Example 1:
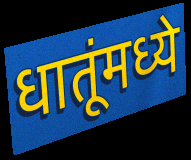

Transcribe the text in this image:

धातूंमध्ये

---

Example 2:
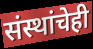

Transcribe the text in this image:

संस्थांचेही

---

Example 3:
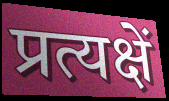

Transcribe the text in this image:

प्रत्यक्षें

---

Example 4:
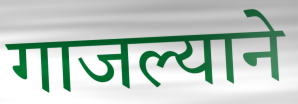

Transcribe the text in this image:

गाजल्याने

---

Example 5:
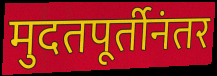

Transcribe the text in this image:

मुदतपूर्तीनंतर